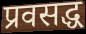
प्रवसद्ध